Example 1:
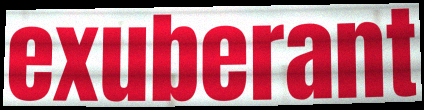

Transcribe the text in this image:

exuberant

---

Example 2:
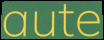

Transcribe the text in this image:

aute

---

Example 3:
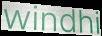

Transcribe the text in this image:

windhi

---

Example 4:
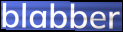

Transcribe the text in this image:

blabber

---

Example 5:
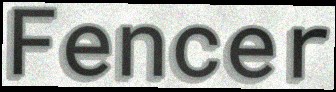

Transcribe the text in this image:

Fencer